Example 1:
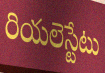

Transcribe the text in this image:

రియలెస్టేటు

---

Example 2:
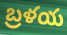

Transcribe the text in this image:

బ్రళయ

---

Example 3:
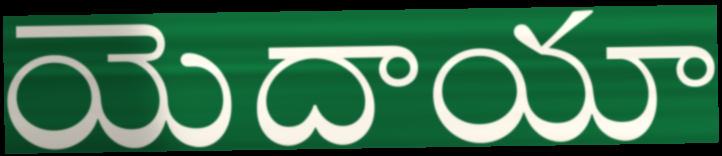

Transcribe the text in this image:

యెదాయా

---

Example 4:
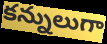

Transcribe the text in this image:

కన్నులుగా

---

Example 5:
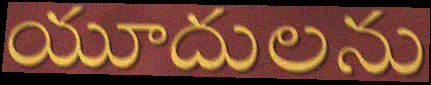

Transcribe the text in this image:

యూదులను